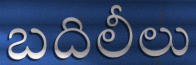
బదిలీలు